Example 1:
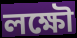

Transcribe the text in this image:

লক্ষৌ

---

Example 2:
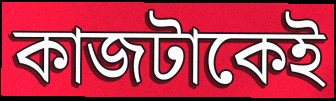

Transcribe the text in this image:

কাজটাকেই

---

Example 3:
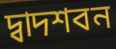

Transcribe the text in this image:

দ্বাদশবন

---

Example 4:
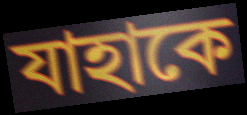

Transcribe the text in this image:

যাহাকে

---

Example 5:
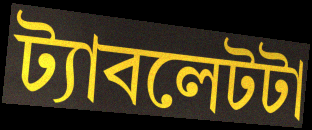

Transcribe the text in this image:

ট্যাবলেটটা